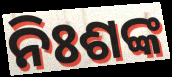
ନିଃଶଙ୍କ